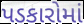
પડકારોમાં